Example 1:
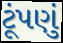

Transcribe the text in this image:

ટૂંપણું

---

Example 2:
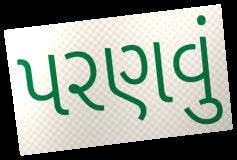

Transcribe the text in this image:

પરણવું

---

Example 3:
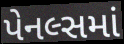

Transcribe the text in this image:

પેનલ્સમાં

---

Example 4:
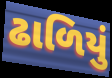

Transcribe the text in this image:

ઢાળિયું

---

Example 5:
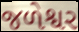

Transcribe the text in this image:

જળેશ્વર